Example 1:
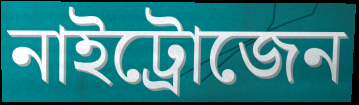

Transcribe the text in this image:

নাইট্রোজেন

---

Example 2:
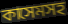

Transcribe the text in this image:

কাসেমসহ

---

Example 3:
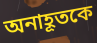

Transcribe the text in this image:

অনাহূতকে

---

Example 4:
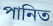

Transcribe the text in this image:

পানিত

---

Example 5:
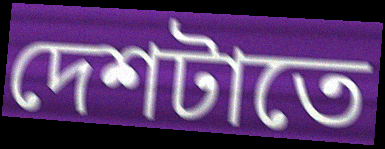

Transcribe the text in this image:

দেশটাতে